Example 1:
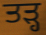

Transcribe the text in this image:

ਤੜ੍ਹ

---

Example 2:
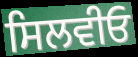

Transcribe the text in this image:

ਸਿਲਵੀਓ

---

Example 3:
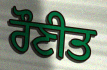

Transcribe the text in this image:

ਰੌਣੀਤ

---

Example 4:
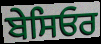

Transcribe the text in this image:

ਬੇਸਿਓਰ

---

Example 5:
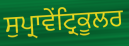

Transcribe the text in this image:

ਸੁਪ੍ਰਾਵੇਂਟ੍ਰਿਕੂਲਰ